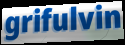
grifulvin